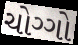
ચોગ્ગો